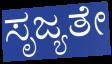
ಸೃಜ್ಯತೇ